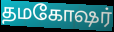
தமகோஷர்